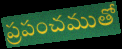
ప్రపంచముతో